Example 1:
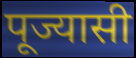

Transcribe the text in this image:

पूज्यासी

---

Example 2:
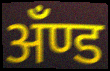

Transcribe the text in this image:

अँण्ड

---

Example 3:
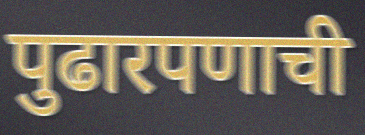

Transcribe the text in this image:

पुढारपणाची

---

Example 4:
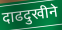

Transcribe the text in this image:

दाढदुखीने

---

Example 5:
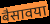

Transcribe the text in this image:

बैसावया